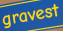
gravest